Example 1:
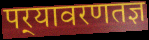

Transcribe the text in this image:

पर्यावरणतज्ञ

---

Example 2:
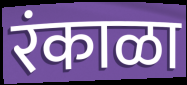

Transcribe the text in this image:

रंकाळा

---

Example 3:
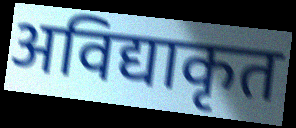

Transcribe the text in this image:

अविद्याकृत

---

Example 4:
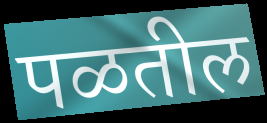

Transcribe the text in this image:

पळतील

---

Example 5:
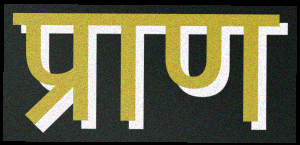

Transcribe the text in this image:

प्राण